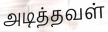
அடித்தவள்